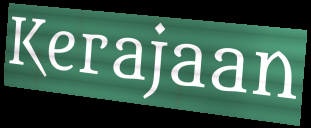
Kerajaan